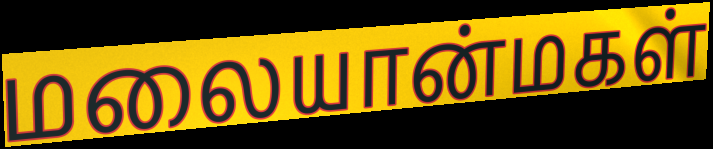
மலையான்மகள்